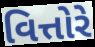
વિત્તોરે